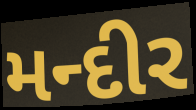
મન્દીર